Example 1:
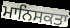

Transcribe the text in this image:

ਮਾਨਿਸਕਤਾ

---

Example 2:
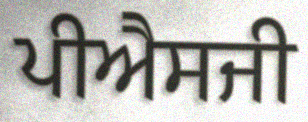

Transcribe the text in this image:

ਪੀਐਸਜੀ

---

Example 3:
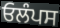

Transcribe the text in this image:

ਓਲੰਪਸ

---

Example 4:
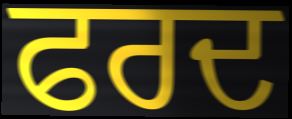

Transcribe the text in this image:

ਫਰਦ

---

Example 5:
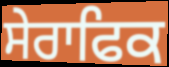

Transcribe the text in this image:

ਸੇਰਾਫਿਕ